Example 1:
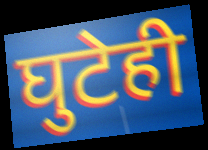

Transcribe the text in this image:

घुटेही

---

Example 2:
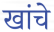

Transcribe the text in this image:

खांचे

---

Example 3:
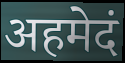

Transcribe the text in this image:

अहमेदं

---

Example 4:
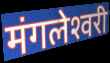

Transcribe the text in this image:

मंगलेश्वरी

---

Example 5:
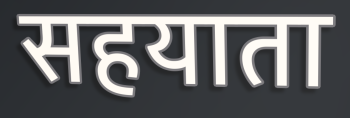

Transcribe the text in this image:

सहयाता